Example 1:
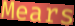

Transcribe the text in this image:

Mears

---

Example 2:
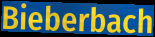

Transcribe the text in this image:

Bieberbach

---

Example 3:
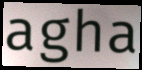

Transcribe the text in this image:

agha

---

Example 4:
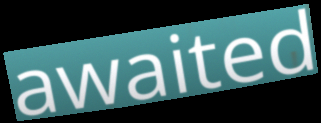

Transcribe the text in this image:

awaited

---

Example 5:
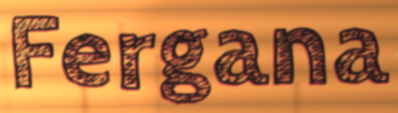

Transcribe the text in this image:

Fergana